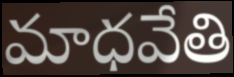
మాధవేతి